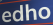
edho